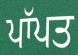
ਪਾੱਪਤ